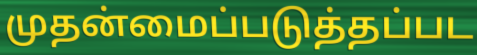
முதன்மைப்படுத்தப்பட